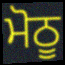
ਮੋਠੂ